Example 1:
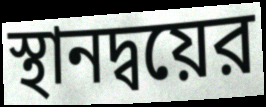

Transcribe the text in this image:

স্থানদ্বয়ের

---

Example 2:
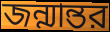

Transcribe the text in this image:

জন্মান্তর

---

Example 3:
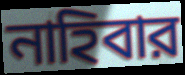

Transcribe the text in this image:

নাহিবার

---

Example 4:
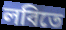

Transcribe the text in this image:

লবিতে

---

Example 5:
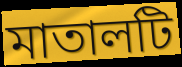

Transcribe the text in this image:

মাতালটি